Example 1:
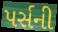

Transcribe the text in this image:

પર્સની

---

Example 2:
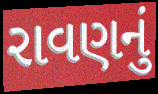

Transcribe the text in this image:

રાવણનું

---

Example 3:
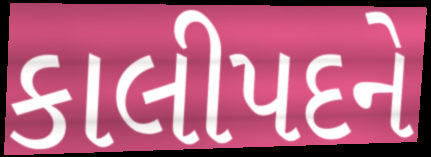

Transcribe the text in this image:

કાલીપદને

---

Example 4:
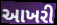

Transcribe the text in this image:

આખરી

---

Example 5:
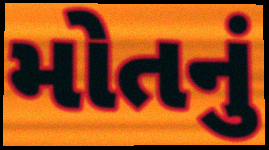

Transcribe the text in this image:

મોતનું